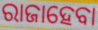
ରାଜାହେବା